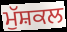
ਮੁੱਸ਼ਕਲ